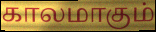
காலமாகும்